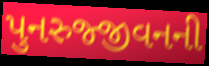
પુનરુજ્જીવનની